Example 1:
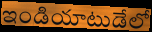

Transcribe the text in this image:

ఇండియాటుడేలో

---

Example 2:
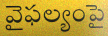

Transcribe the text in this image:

వైఫల్యంపై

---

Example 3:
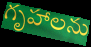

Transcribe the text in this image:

గృహాలను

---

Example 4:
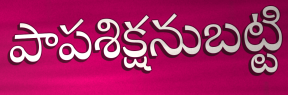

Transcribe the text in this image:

పాపశిక్షనుబట్టి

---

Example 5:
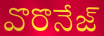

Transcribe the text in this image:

వొరొనేజ్